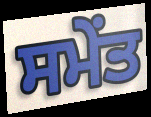
ਸਮੇਂਤ